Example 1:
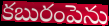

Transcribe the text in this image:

కబురంపెను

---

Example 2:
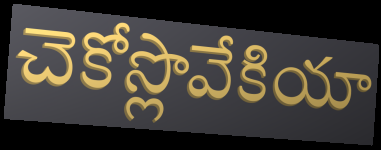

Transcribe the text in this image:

చెకోస్లొవేకియా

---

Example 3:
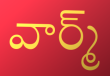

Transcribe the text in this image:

వార్మ్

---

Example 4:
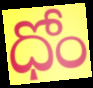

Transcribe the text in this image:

ధోం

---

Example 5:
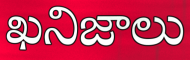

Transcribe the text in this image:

ఖనిజాలు